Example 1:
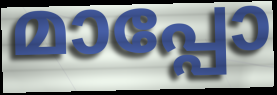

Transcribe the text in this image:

മാപ്പോ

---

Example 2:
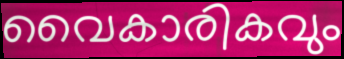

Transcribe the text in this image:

വൈകാരികവും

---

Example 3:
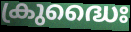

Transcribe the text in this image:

ക്രുദ്ധൈഃ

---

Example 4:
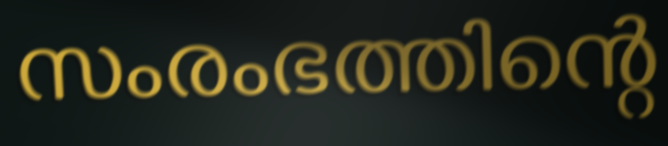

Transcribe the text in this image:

സംരംഭത്തിന്റെ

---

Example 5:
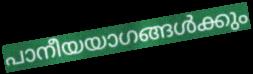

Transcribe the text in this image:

പാനീയയാഗങ്ങൾക്കും